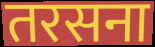
तरसना